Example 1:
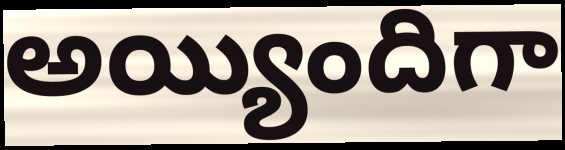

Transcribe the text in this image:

అయ్యిందిగా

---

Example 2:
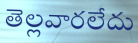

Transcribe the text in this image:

తెల్లవారలేదు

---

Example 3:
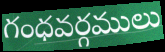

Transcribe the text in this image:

గంధవర్గములు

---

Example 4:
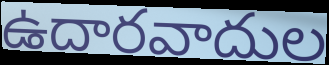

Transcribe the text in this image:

ఉదారవాదుల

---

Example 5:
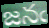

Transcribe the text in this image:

జనఁ